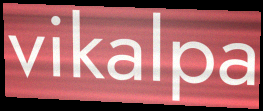
vikalpa